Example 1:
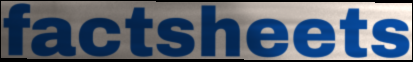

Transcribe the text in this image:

factsheets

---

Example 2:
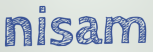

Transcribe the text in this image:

nisam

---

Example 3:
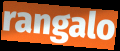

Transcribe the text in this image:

rangalo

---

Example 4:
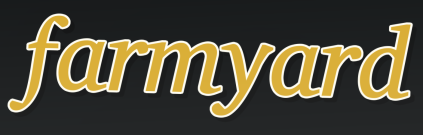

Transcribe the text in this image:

farmyard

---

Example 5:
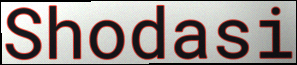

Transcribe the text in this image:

Shodasi